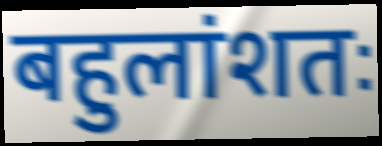
बहुलांशतः